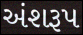
અંશરૂપ